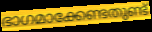
ഭാഗമാക്കേണ്ടതുണ്ട്